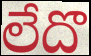
లేదొ